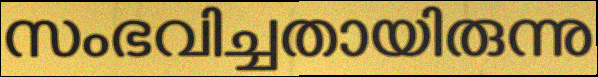
സംഭവിച്ചതായിരുന്നു